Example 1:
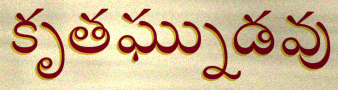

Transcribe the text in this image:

కృతఘ్నుడవు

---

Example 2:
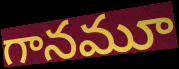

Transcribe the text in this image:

గానమూ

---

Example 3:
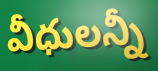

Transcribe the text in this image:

వీధులన్నీ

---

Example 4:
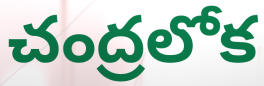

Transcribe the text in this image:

చంద్రలోక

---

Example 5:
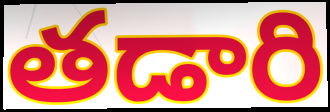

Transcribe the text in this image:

తడారి